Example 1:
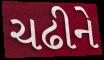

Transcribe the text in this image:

ચઢીને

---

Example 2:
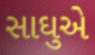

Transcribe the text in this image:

સાઘુએ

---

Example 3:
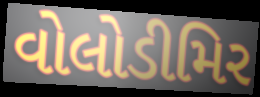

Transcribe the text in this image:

વોલોડીમિર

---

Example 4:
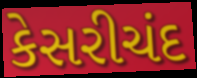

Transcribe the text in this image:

કેસરીચંદ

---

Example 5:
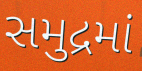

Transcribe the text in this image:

સમુદ્રમાં